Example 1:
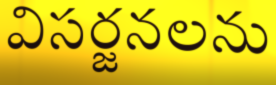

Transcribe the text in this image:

విసర్జనలను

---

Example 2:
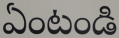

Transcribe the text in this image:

ఏంటండి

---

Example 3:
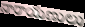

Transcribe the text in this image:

నారాయణులు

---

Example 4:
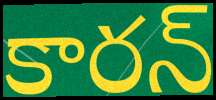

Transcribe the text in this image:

కారన్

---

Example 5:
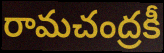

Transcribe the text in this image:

రామచంద్రకీ